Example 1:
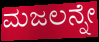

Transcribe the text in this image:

ಮಜಲನ್ನೇ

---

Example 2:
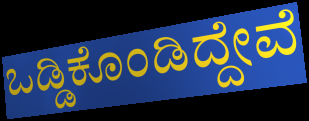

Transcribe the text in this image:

ಒಡ್ಡಿಕೊಂಡಿದ್ದೇವೆ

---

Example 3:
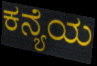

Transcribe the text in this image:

ಕನ್ಯೆಯ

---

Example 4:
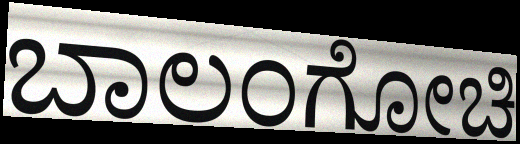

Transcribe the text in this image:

ಬಾಲಂಗೋಚಿ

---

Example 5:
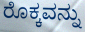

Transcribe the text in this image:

ರೊಕ್ಕವನ್ನು